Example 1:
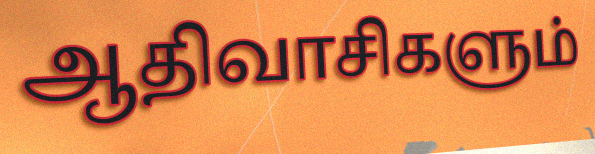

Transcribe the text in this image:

ஆதிவாசிகளும்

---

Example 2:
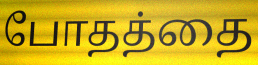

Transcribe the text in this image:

போதத்தை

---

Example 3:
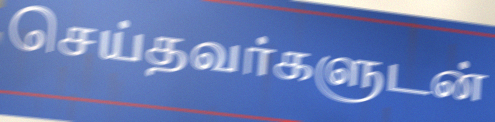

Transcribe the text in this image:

செய்தவர்களுடன்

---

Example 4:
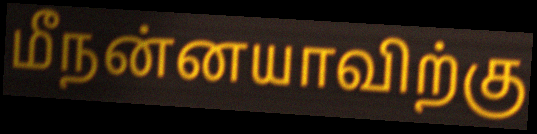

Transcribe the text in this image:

மீநன்னயாவிற்கு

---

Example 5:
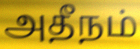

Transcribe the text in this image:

அதீநம்